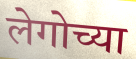
लेगोच्या